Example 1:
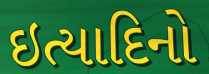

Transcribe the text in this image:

ઇત્યાદિનો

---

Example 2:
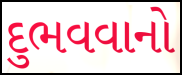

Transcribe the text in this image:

દુભવવાનો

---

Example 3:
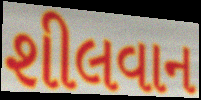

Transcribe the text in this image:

શીલવાન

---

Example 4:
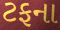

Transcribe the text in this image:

ટફના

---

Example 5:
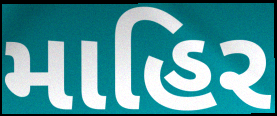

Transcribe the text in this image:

માહિર